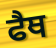
ਫੈਥ